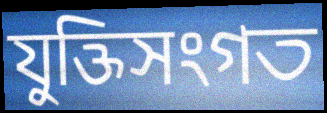
যুক্তিসংগত